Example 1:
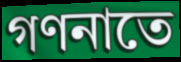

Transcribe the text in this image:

গণনাতে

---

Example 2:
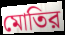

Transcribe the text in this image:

মোতির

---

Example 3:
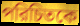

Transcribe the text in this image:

পরিচিতকে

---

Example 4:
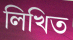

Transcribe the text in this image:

লিখিত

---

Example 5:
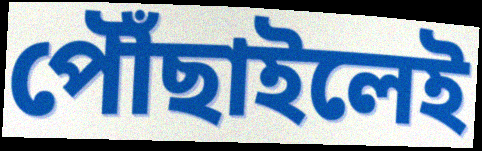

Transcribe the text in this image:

পৌঁছাইলেই